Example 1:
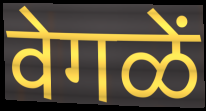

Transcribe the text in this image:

वेगळें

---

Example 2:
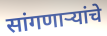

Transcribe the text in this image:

सांगणार्‍यांचे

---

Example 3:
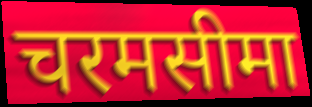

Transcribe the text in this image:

चरमसीमा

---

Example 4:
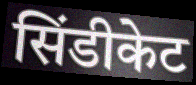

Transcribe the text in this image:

सिंडीकेट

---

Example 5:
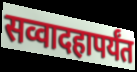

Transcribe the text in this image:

सव्वादहापर्यंत